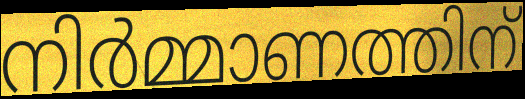
നിർമ്മാണത്തിന്